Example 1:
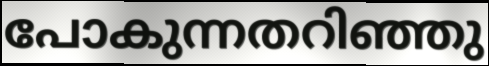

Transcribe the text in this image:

പോകുന്നതറിഞ്ഞു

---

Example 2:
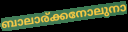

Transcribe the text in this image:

ബാലാര്ക്കനോലുനാ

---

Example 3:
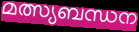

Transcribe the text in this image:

മത്സ്യബന്ധന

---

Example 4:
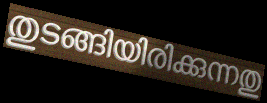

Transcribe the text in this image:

തുടങ്ങിയിരിക്കുന്നതു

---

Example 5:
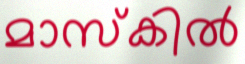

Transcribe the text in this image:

മാസ്കിൽ